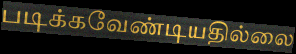
படிக்கவேண்டியதில்லை